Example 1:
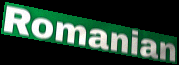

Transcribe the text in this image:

Romanian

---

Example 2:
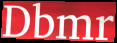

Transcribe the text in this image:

Dbmr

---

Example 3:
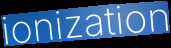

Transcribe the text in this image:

ionization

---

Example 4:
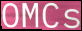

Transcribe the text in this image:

OMCs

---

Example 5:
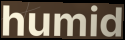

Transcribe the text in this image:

humid